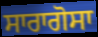
ਸਾਰਾਗੋਸਾ